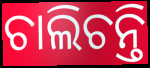
ଚାଲିଚନ୍ତି